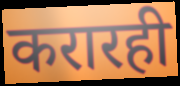
करारही